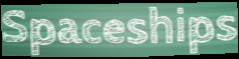
Spaceships